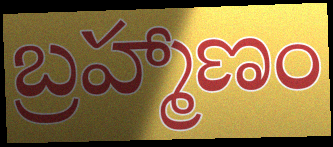
బ్రహ్మాణం